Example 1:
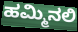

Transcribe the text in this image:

ಹಮ್ಮಿನಲಿ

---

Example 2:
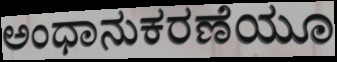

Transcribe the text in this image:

ಅಂಧಾನುಕರಣೆಯೂ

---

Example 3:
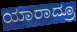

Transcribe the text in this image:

ಯಾರಾದ್ರೂ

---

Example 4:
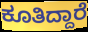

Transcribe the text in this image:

ಕೂತಿದ್ದಾರೆ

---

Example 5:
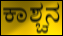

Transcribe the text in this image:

ಕಾಶ್ಚನ